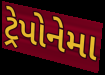
ટ્રેપોનેમા